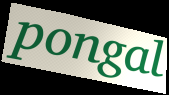
pongal